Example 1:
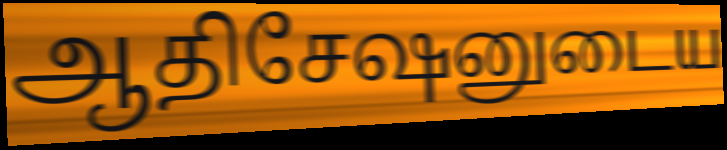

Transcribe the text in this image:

ஆதிசேஷனுடைய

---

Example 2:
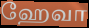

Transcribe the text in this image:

ஹேவா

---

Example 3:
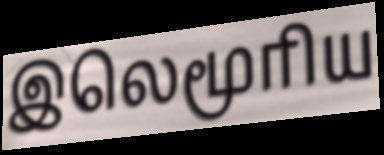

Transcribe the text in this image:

இலெமூரிய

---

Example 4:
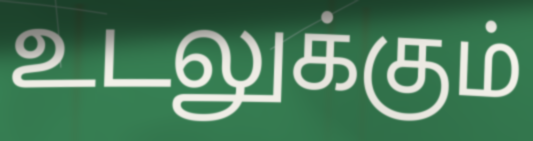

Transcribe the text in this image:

உடலுக்கும்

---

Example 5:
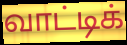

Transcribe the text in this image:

வாட்டிக்